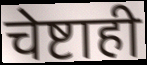
चेष्टाही